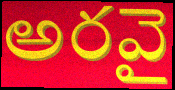
అరవై